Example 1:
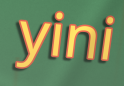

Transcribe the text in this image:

yini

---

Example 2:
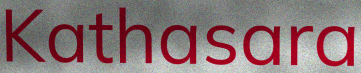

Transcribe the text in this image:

Kathasara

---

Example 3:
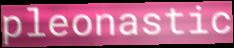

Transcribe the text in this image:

pleonastic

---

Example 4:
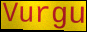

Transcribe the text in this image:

Vurgu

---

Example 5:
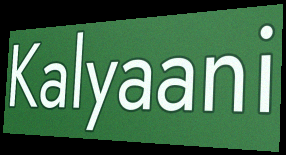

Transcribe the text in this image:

Kalyaani